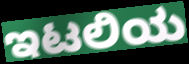
ಇಟಲಿಯ